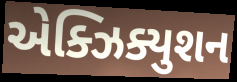
એક્ઝિક્યુશન